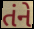
તંને